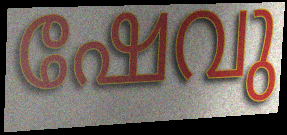
ഷേവു